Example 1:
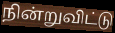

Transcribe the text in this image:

நின்றுவிட்டு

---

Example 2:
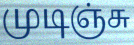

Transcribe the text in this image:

முடிஞ்சு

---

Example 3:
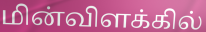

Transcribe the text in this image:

மின்விளக்கில்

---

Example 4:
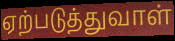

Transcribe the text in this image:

ஏற்படுத்துவாள்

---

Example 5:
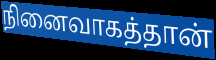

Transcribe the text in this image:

நினைவாகத்தான்